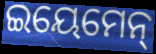
ଇୟେମେନ୍